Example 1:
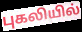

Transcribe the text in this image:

புகலியில்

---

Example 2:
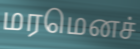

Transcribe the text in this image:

மரமெனச்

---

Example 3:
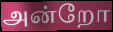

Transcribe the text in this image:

அன்றோ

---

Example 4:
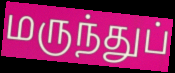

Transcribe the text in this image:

மருந்துப்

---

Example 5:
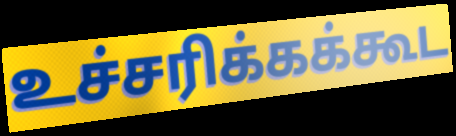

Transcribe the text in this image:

உச்சரிக்கக்கூட